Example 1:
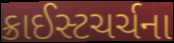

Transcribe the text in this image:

ક્રાઈસ્ટચર્ચના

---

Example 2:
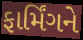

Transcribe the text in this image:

ફાર્મિંગને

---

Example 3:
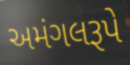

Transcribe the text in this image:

અમંગલરૂપે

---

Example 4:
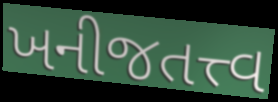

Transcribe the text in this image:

ખનીજતત્ત્વ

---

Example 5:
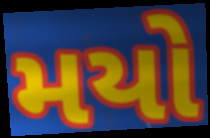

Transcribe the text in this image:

મયો